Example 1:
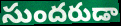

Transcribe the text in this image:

సుందరుడా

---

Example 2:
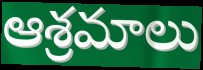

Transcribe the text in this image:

ఆశ్రమాలు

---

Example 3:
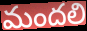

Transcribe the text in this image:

మందలి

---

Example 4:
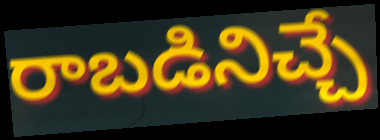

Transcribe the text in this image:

రాబడినిచ్చే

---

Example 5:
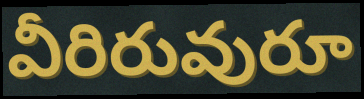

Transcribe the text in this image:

వీరిరువురూ